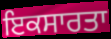
ਇਕਸਾਰਤਾ